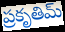
ప్రకృతిమ్